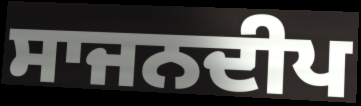
ਸਾਜਨਦੀਪ